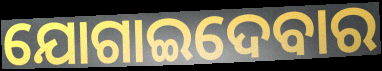
ଯୋଗାଇଦେବାର